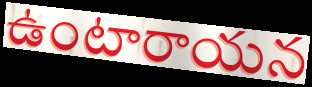
ఉంటారాయన